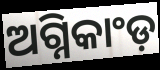
ଅଗ୍ନିକାଂଡ଼